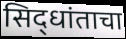
सिद्धांताचा